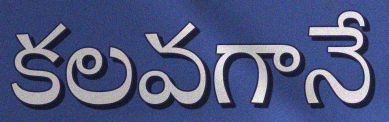
కలవగానే